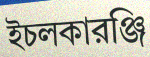
ইচলকারঞ্জি